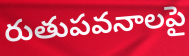
రుతుపవనాలపై